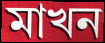
মাখন